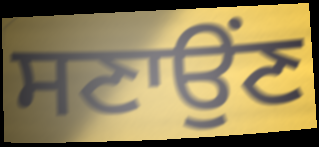
ਸਣਾਉਂਣ